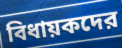
বিধায়কদের